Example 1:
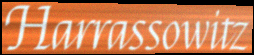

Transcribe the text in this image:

Harrassowitz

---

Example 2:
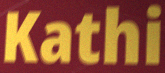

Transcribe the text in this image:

Kathi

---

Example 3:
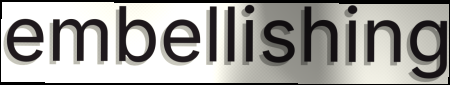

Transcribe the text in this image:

embellishing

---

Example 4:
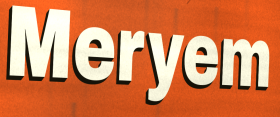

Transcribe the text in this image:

Meryem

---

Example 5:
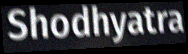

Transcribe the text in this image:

Shodhyatra